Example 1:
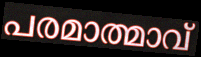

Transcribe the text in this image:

പരമാത്മാവ്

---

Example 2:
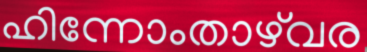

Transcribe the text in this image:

ഹിന്നോംതാഴ്‌വര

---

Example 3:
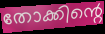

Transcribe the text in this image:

തോക്കിന്റെ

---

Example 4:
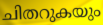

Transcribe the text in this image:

ചിതറുകയും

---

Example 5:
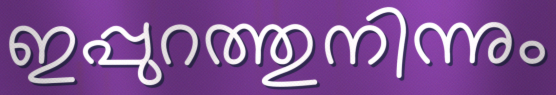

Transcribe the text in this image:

ഇപ്പുറത്തുനിന്നും